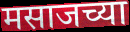
मसाजच्या